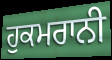
ਹੁਕਮਰਾਨੀ